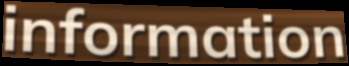
information